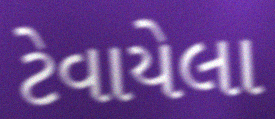
ટેવાયેલા